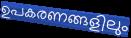
ഉപകരണങ്ങളിലും